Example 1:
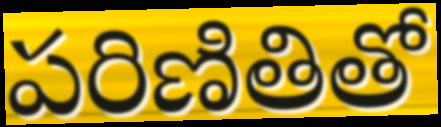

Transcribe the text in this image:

పరిణితితో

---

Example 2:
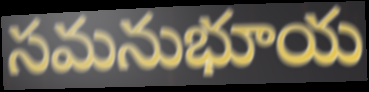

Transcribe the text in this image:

సమనుభూయ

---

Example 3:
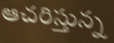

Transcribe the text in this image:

ఆచరిస్తున్న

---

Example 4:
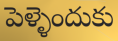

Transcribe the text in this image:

పెళ్ళెందుకు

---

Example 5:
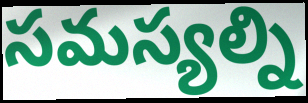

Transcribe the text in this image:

సమస్యల్ని